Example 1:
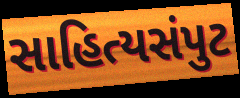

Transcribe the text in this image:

સાહિત્યસંપુટ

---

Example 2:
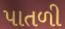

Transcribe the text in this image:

પાતળી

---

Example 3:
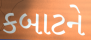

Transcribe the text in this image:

કબાટને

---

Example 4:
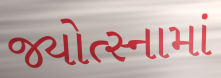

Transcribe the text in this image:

જ્યોત્સ્નામાં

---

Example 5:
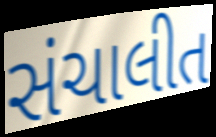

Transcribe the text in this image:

સંચાલીત